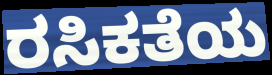
ರಸಿಕತೆಯ